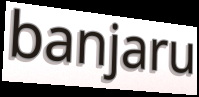
banjaru